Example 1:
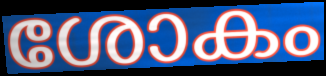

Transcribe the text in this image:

ശോകം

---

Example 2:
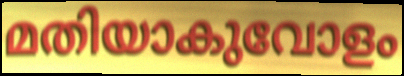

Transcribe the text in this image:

മതിയാകുവോളം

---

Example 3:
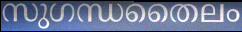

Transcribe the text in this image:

സുഗന്ധതൈലം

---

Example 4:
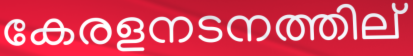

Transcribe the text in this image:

കേരളനടനത്തില്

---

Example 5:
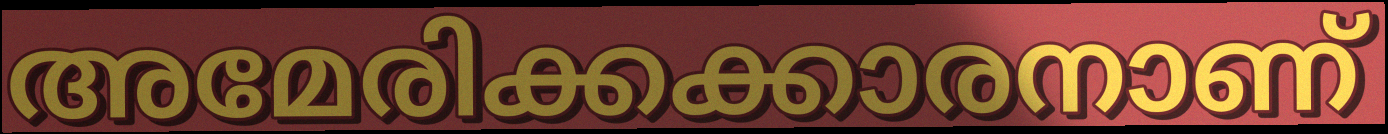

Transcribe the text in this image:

അമേരിക്കക്കാരനാണ്